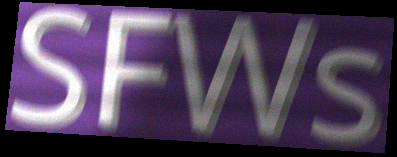
SFWs